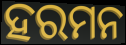
ହରମନ